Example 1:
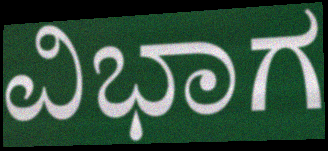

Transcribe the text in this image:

ವಿಭಾಗ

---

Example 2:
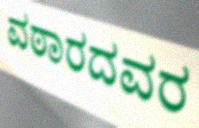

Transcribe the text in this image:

ವಠಾರದವರ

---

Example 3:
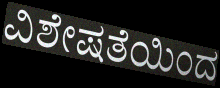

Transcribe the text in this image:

ವಿಶೇಷತೆಯಿಂದ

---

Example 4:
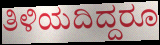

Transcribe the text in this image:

ತಿಳಿಯದಿದ್ದರೂ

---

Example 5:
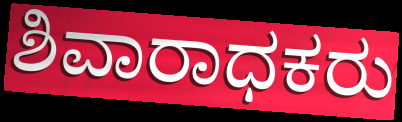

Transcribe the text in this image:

ಶಿವಾರಾಧಕರು